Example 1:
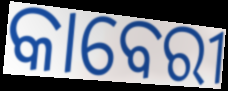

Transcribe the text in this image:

କାବେରୀ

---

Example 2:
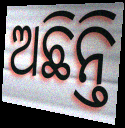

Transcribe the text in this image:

ଅଛିନ୍ତି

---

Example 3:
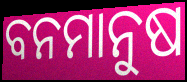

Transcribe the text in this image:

ବନମାନୁଷ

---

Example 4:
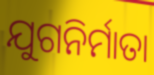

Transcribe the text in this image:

ଯୁଗନିର୍ମାତା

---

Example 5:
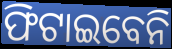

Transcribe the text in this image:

ଫିଟାଇବେନି